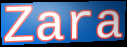
Zara